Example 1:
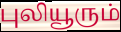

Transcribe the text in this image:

புலியூரும்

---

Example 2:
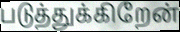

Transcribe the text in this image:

படுத்துக்கிறேன்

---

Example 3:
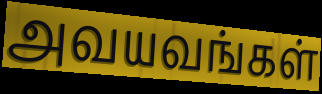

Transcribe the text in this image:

அவயவங்கள்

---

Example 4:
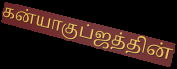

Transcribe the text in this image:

கன்யாகுப்ஜத்தின்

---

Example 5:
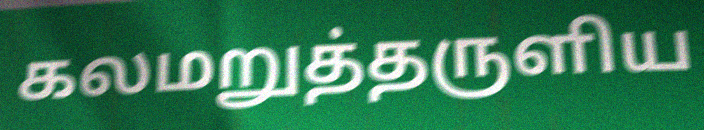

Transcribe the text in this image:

கலமறுத்தருளிய